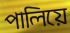
পালিয়ে